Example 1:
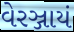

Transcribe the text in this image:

વેરઞ્જાયં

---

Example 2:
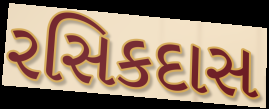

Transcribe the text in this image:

રસિકદાસ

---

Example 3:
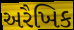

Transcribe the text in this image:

અરૈખિક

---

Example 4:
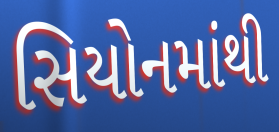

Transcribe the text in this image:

સિયોનમાંથી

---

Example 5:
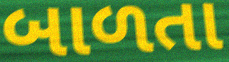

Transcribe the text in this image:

બાળતા